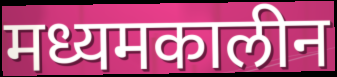
मध्यमकालीन